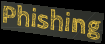
Phishing